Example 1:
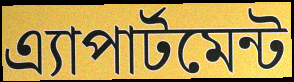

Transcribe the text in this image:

এ্যাপার্টমেন্ট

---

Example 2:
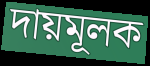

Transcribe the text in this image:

দায়মূলক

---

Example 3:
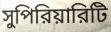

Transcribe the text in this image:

সুপিরিয়ারিটি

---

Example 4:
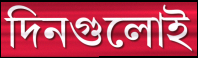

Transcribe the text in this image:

দিনগুলোই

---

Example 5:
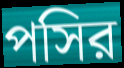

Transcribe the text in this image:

পসির